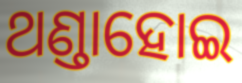
ଥଣ୍ଡାହୋଇ